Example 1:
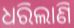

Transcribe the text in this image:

ଧରିଲାଣି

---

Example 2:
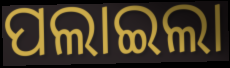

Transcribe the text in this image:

ପଲାଇଲା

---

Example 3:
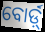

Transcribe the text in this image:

ବୋର୍ଡ଼୍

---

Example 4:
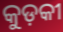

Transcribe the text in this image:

କୁଡ଼କୀ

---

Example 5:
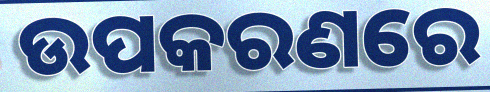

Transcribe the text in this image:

ଉପକରଣରେ